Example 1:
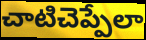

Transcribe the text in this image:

చాటిచెప్పేలా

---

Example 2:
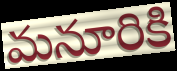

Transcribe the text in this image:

మనూరికి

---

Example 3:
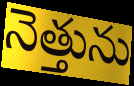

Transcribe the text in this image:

నెత్తును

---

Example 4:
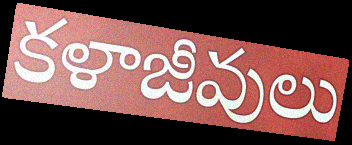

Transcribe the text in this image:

కళాజీవులు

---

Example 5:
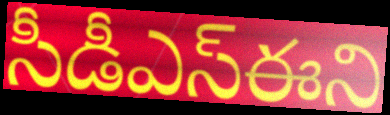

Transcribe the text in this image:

సీడీఎస్ఈని